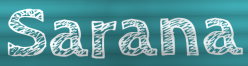
Sarana